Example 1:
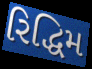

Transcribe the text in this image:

રિદ્ધિમ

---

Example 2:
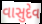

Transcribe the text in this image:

વાસુદેવ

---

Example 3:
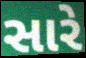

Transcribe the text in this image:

સારે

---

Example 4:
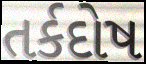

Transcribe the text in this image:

તર્કદોષ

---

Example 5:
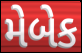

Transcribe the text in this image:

મેબેક